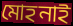
মোহনাই